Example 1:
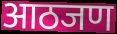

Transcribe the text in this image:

आठजण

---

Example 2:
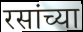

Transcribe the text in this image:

रसांच्या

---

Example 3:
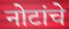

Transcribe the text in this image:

नोटांचे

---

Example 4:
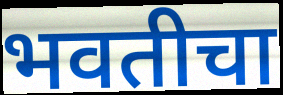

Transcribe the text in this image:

भवतीचा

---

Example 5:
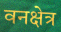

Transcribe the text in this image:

वनक्षेत्र